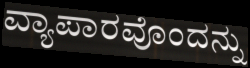
ವ್ಯಾಪಾರವೊಂದನ್ನು